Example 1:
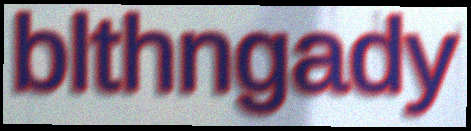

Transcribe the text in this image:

blthngady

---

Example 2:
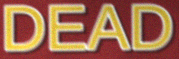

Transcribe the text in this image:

DEAD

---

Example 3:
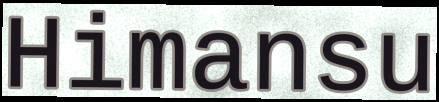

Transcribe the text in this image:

Himansu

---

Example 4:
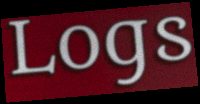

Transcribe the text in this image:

Logs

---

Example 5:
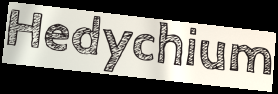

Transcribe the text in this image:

Hedychium